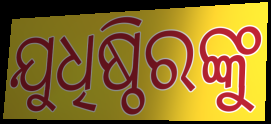
ଯୁଧିଷ୍ଠିରଙ୍କୁ